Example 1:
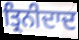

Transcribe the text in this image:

ਤ੍ਰਿਨੀਦਾਦ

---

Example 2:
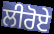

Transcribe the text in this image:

ਲੀਰੋਏ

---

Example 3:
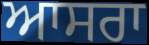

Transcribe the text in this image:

ਆਸਰਾ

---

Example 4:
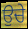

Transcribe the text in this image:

ਉਚੇ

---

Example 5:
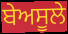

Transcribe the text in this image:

ਬੇਅਸੂਲੇ